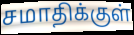
சமாதிக்குள்